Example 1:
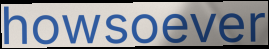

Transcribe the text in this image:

howsoever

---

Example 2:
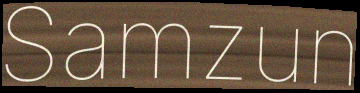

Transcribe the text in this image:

Samzun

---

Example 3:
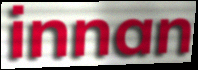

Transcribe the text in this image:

innan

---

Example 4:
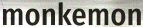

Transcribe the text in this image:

monkemon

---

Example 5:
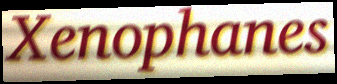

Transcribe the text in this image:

Xenophanes